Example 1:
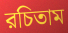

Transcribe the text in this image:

রচিতাম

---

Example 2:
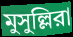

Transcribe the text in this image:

মুসুল্লিরা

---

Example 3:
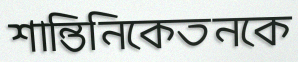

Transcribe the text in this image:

শান্তিনিকেতনকে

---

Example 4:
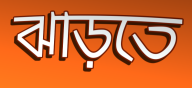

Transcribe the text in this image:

ঝাড়তে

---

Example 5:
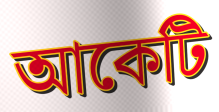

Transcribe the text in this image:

আকেটি